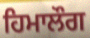
ਹਿਮਾਲੌਗ